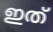
ഇത്